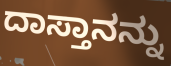
ದಾಸ್ತಾನನ್ನು